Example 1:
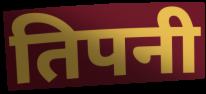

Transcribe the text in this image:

तिपनी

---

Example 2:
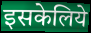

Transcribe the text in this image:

इसकेलिये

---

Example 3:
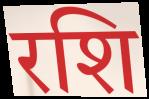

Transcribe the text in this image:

रशि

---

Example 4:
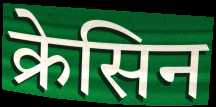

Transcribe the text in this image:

क्रेसिन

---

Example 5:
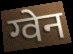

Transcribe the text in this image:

ग्वेन